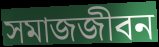
সমাজজীবন